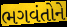
ભગવંતોને